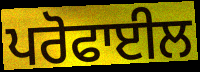
ਪਰੋਫਾਈਲ